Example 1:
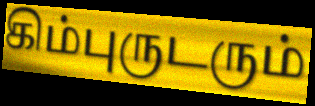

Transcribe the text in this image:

கிம்புருடரும்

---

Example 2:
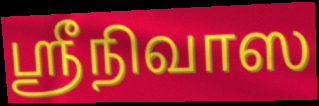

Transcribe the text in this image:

ஸ்ரீநிவாஸ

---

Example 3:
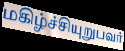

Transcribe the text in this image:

மகிழ்ச்சியுறுபவர்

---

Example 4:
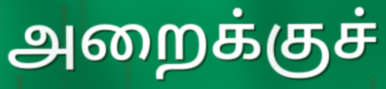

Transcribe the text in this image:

அறைக்குச்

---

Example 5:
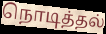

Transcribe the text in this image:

நொடித்தல்